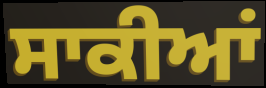
ਸਾਕੀਆਂ